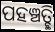
ପହଞ୍ଚତ୍ଛି